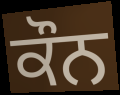
ਕੌਨ